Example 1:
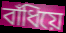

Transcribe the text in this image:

বাঁধিয়ে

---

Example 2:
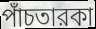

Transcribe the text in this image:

পাঁচতারকা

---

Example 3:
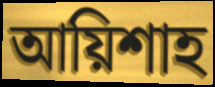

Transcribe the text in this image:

আয়িশাহ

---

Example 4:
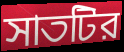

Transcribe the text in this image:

সাতটির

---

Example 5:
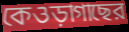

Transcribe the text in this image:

কেওড়াগাছের